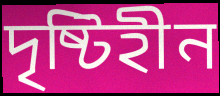
দৃষ্টিহীন